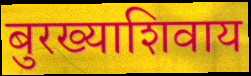
बुरख्याशिवाय